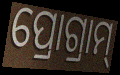
ପ୍ରୋଗ୍ରାମ୍